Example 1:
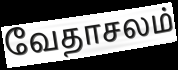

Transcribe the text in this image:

வேதாசலம்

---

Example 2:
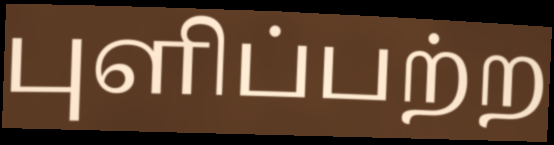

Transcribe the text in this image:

புளிப்பற்ற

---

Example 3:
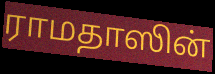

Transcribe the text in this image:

ராமதாஸின்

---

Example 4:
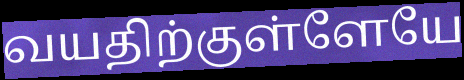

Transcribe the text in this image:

வயதிற்குள்ளேயே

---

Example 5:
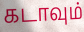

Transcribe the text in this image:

கடாவும்